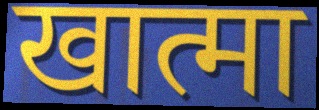
खात्मा